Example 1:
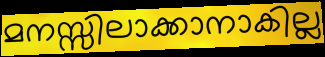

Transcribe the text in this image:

മനസ്സിലാക്കാനാകില്ല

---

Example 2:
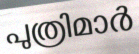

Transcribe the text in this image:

പുത്രിമാർ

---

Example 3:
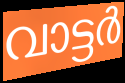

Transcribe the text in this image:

വാട്ടർ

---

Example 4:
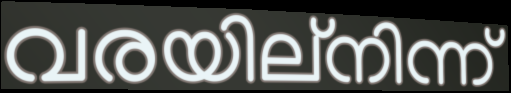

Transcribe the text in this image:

വരയില്നിന്ന്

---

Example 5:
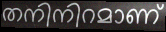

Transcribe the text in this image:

തനിനിറമാണ്